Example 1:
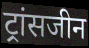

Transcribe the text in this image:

ट्रांसजीन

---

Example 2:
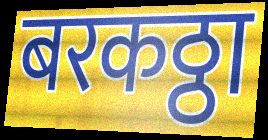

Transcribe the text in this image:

बरकठ्ठा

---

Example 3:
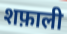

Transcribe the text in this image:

शफ़ाली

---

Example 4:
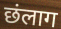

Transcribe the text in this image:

छंलाग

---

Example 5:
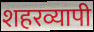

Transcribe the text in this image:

शहरव्यापी